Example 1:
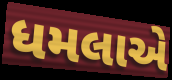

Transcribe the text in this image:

ધમલાએ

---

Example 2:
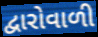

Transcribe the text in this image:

દ્વારોવાળી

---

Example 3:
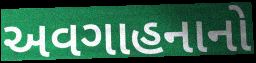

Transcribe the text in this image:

અવગાહનાનો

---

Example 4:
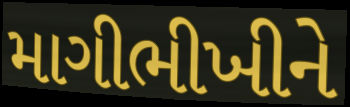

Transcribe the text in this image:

માગીભીખીને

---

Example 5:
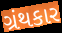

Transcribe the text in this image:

ગ્રંથકાર